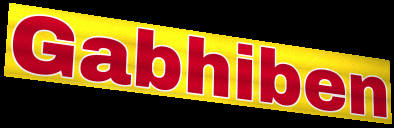
Gabhiben